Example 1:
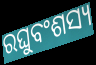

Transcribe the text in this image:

ରଘୁବଂଶସ୍ୟ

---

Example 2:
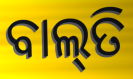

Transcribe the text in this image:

ବାଲ୍‌ତି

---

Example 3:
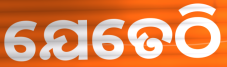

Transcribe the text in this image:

ଯେତେଠି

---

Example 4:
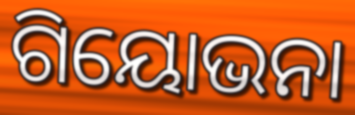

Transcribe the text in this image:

ଗିୟୋଭନା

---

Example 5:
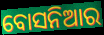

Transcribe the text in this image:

ବୋସନିଆର